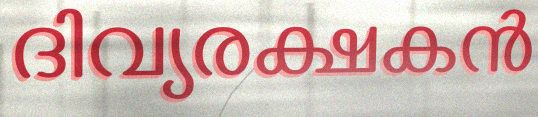
ദിവ്യരക്ഷകൻ